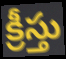
క్రీస్తు